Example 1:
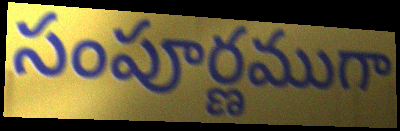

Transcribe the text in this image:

సంపూర్ణముగా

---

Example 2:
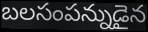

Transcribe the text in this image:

బలసంపన్నుడైన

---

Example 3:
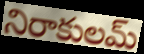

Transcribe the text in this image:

నిరాకులమ్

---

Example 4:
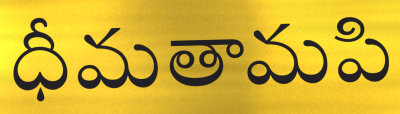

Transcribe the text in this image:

ధీమతామపి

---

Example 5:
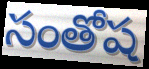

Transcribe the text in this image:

సంతోష